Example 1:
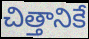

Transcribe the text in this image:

చిత్తానికే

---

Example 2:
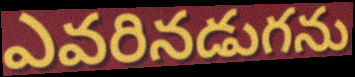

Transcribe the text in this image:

ఎవరినడుగను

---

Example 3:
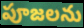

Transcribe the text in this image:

పూజలను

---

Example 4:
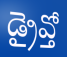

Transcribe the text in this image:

డ్రైవ్తో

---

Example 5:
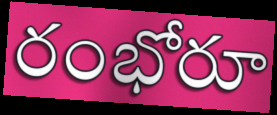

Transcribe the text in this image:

రంభోరూ